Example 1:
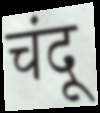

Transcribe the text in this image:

चंदू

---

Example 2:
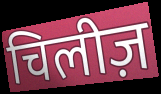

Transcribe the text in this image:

चिलीज़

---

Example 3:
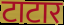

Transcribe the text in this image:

टाटार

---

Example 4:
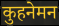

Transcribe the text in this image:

कुहनेमन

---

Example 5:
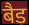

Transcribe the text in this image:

बैड